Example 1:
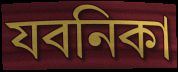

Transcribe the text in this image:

যবনিকা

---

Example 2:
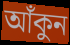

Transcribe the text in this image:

আঁকুন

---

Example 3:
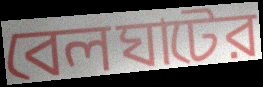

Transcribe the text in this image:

বেলঘাটের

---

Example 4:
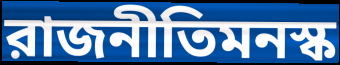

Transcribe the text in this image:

রাজনীতিমনস্ক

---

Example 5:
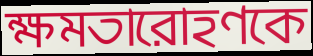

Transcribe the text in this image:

ক্ষমতারোহণকে